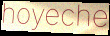
hoyeche